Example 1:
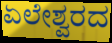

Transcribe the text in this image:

ಏಲೇಶ್ವರದ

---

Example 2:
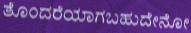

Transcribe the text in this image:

ತೊಂದರೆಯಾಗಬಹುದೇನೋ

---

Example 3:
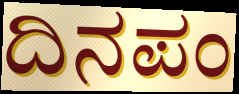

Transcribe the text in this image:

ದಿನಪಂ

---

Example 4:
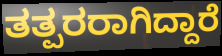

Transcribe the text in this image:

ತತ್ಪರರಾಗಿದ್ದಾರೆ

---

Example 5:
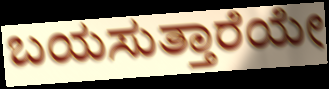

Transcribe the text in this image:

ಬಯಸುತ್ತಾರೆಯೇ